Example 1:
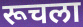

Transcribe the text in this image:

रूचला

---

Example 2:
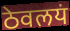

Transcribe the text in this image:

ठेवलयं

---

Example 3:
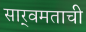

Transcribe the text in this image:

सार्वमताची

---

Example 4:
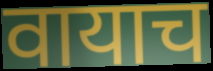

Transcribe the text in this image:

वायाच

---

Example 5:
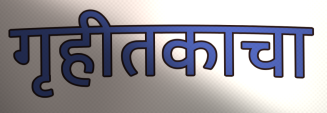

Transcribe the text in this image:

गृहीतकाचा